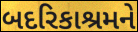
બદરિકાશ્રમને